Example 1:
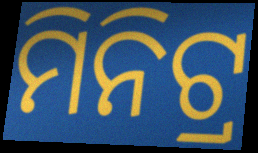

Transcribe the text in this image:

ମିନିଟ୍ର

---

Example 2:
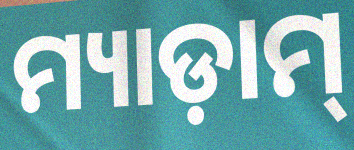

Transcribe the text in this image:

ମ୍ୟାଡ଼ାମ୍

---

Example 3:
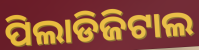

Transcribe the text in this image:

ପିଲାଡିଜିଟାଲ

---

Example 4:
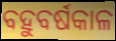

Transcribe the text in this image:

ବହୁବର୍ଷକାଳ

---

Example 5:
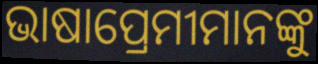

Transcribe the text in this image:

ଭାଷାପ୍ରେମୀମାନଙ୍କୁ